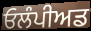
ਓਲੰਪੀਅਡ